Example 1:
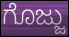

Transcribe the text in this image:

ಗೊಜ್ಜು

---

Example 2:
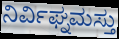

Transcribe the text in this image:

ನಿರ್ವಿಘ್ನಮಸ್ತು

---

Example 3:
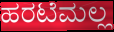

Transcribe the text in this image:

ಹರಟೆಮಲ್ಲ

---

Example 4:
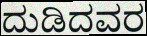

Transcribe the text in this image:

ದುಡಿದವರ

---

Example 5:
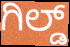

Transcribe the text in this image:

ಗಿಲ್ಡ್